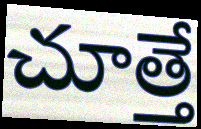
చూత్తే